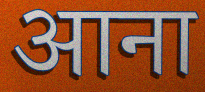
आना